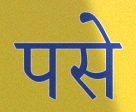
पसे